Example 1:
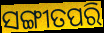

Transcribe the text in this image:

ସଙ୍ଗୀତପରି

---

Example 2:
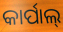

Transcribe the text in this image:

କାର୍ପାଲ୍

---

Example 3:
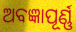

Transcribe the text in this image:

ଅବଜ୍ଞାପୂର୍ଣ୍ଣ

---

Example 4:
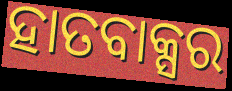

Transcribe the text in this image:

ହାତବାକ୍ସର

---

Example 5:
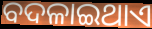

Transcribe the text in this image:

ବଦଳାଇଥାଏ